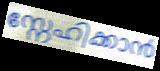
സ്നേഹിക്കാൻ